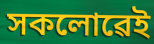
সকলোৱেই